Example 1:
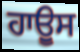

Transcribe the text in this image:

ਹਾਊੁਸ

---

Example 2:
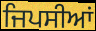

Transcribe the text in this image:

ਜਿਪਸੀਆਂ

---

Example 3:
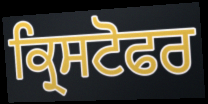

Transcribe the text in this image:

ਕ੍ਰਿਸਟੋਫਰ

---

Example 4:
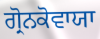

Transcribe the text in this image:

ਗ੍ਰੋਨਕੋਵਾਯਾ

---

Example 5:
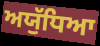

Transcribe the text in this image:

ਅਯੁੱਧਿਆ